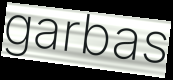
garbas